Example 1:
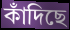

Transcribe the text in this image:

কাঁদিছে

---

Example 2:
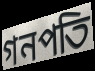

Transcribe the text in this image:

গনপতি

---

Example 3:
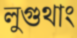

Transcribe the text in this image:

লুগুথাং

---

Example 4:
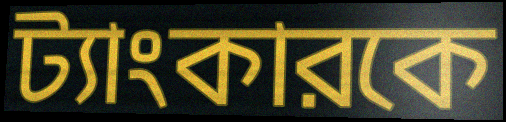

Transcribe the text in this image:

ট্যাংকারকে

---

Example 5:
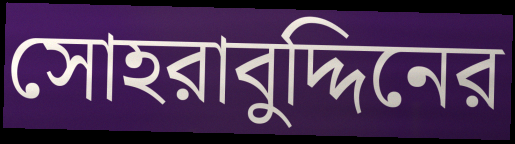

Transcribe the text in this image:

সোহরাবুদ্দিনের